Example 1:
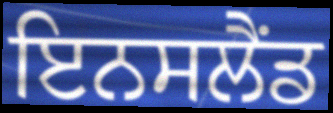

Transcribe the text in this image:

ਇਨਸਲੈਂਡ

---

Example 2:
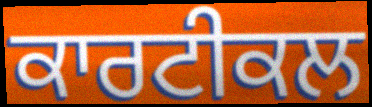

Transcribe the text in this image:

ਕਾਰਟੀਕਲ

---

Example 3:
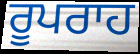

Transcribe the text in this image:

ਰੂਪਰਾਹ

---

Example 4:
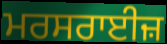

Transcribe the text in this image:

ਮਰਸਰਾਈਜ਼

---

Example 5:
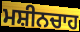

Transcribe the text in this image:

ਮਸ਼ੀਨਚਾਹ